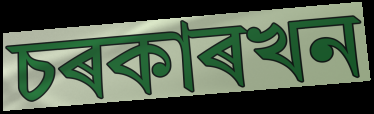
চৰকাৰখন